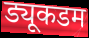
ड्यूकडम